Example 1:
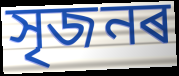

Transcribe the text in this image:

সৃজনৰ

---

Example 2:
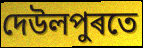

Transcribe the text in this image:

দেউলপুৰতে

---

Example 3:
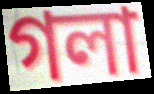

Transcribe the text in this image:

গলা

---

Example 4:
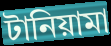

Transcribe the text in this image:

টানিয়ামা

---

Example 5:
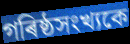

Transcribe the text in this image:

গৰিষ্ঠসংখ্যকে